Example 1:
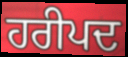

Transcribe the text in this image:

ਹਰੀਪਦ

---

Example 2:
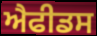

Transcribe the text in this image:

ਐਫੀਡਸ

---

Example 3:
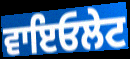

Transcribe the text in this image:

ਵਾਇਓਲੇਟ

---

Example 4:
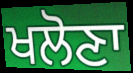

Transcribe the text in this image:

ਖਲੋਣਾ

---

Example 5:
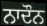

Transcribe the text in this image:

ਨਾਦੌਨ